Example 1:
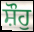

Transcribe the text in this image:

ਸ਼ੌਹੁ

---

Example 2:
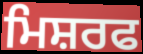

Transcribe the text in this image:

ਮਿਸ਼ਰਫ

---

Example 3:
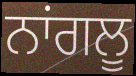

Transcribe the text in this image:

ਨਾਂਗਲੂ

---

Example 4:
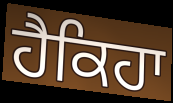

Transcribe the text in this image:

ਹੈਕਿਹਾ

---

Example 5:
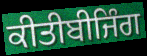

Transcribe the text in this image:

ਕੀਤੀਬੀਜਿੰਗ